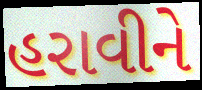
હરાવીને